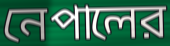
নেপালের